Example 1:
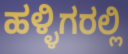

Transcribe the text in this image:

ಹಳ್ಳಿಗರಲ್ಲಿ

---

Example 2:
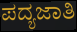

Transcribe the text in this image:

ಪದ್ಯಜಾತಿ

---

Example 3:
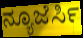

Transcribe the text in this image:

ನ್ಯೂಜೆರ್ಸಿ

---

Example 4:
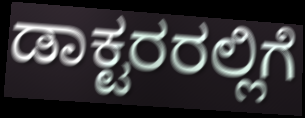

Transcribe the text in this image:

ಡಾಕ್ಟರರಲ್ಲಿಗೆ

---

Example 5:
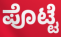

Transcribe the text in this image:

ಪೊಟ್ಟೆ